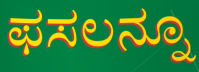
ಫಸಲನ್ನೂ